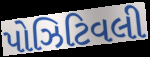
પોઝિટિવલી